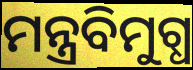
ମନ୍ତ୍ରବିମୁଗ୍ଧ